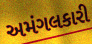
અમંગલકારી